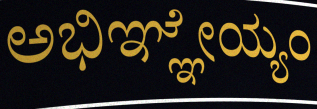
ಅಭಿಞ್ಞೇಯ್ಯಂ